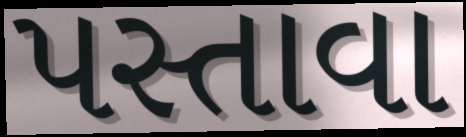
પસ્તાવા